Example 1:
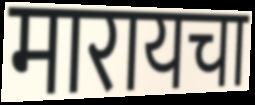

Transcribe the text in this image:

मारायचा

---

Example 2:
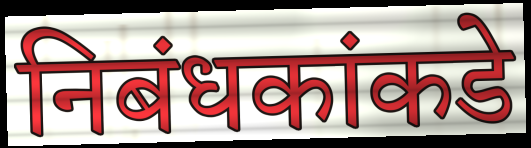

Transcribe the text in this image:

निबंधकांकडे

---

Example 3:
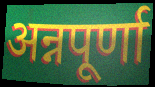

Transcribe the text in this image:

अन्नपूर्णा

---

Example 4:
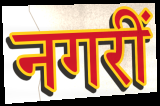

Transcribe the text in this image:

नगरीं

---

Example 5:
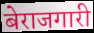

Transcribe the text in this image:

बेराजगारी